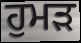
ਹੁਮੜ